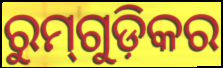
ରୁମ୍‌ଗୁଡ଼ିକର